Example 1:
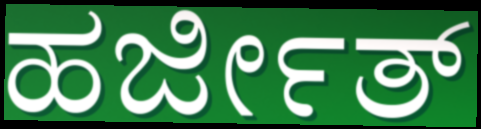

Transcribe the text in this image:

ಹರ್ಜೀತ್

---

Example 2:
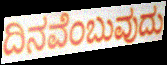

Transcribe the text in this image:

ದಿನವೆಂಬುವುದು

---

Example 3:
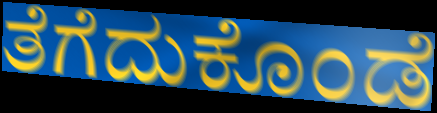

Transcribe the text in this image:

ತೆಗೆದುಕೊಂಡೆ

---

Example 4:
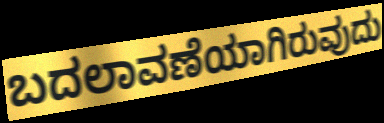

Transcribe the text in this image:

ಬದಲಾವಣೆಯಾಗಿರುವುದು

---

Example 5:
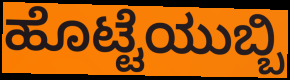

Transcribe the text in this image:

ಹೊಟ್ಟೆಯುಬ್ಬಿ